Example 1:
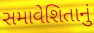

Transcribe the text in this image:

સમાવેશિતાનું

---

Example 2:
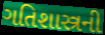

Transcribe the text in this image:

ગતિશાસ્ત્રની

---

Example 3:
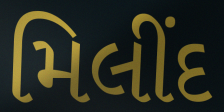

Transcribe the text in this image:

મિલીંદ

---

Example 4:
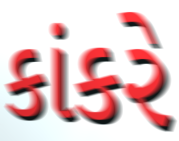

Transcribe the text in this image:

કાંકરે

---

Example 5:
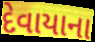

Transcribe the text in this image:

દેવાયાના